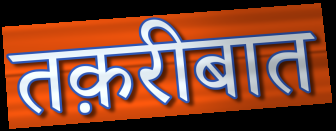
तक़रीबात